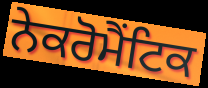
ਨੇਕਰੋਮੈਂਟਿਕ